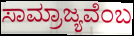
ಸಾಮ್ರಾಜ್ಯವೆಂಬ